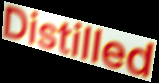
Distilled